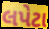
લપેટા